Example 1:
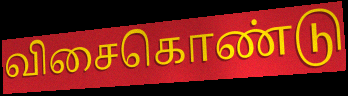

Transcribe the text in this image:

விசைகொண்டு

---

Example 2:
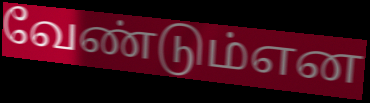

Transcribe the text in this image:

வேண்டும்என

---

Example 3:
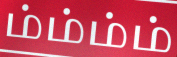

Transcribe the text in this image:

ம்ம்ம்ம்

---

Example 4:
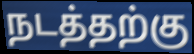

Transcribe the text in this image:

நடத்தற்கு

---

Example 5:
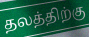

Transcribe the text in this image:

தலத்திற்கு